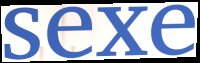
sexe